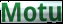
Motu